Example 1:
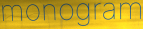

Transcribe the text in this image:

monogram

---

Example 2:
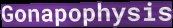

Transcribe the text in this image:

Gonapophysis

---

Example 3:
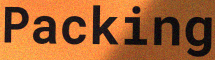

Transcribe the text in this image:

Packing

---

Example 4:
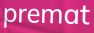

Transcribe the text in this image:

premat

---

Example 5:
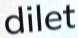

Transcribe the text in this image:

dilet